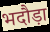
भदौड़ा